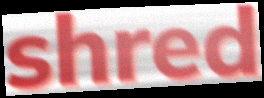
shred